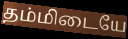
தம்மிடையே